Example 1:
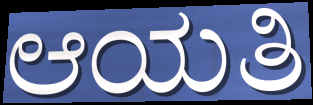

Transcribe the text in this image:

ಆಯತಿ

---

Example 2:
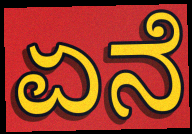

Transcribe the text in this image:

ಏನೆ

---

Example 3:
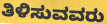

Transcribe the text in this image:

ತಿಳಿಸುವವರು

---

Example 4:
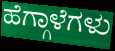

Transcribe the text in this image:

ಹೆಗ್ಗಾಳೆಗಳು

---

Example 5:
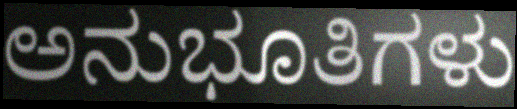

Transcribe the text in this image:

ಅನುಭೂತಿಗಳು